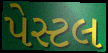
પેસ્ટલ